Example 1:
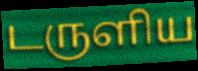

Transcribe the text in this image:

டருளிய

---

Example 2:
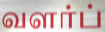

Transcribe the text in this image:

வளர்ப்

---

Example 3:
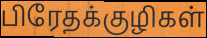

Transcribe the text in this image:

பிரேதக்குழிகள்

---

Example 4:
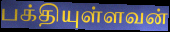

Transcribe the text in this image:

பக்தியுள்ளவன்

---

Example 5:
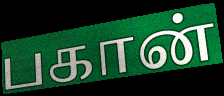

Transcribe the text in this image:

பகான்